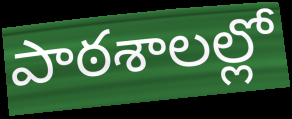
పాఠశాలల్లో